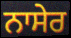
ਨਾਸੇਰ